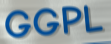
GGPL